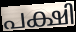
പക്ഷി